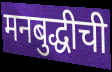
मनबुद्धीची